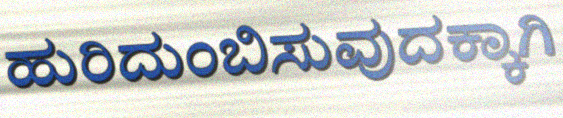
ಹುರಿದುಂಬಿಸುವುದಕ್ಕಾಗಿ